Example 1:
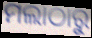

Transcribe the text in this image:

ମଲାଠାରୁ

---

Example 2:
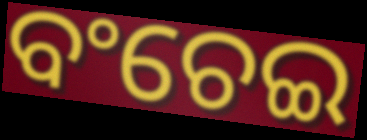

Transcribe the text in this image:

ବଂଚେଇ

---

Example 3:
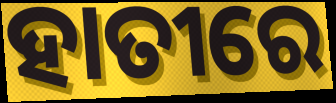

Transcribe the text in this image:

ହାତୀରେ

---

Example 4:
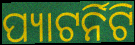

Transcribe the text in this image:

ପ୍ୟାଟର୍ନିଟି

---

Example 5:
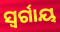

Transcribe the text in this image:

ସ୍ବର୍ଗାୟ